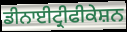
ਡੀਨਾਈਟ੍ਰੀਫੀਕੇਸ਼ਨ